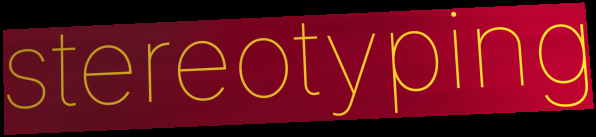
stereotyping